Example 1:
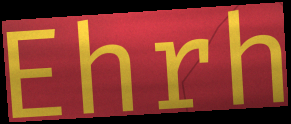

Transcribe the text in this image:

Ehrh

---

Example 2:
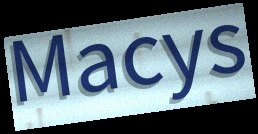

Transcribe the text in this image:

Macys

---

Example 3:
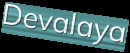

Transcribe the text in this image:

Devalaya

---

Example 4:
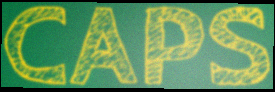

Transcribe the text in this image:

CAPS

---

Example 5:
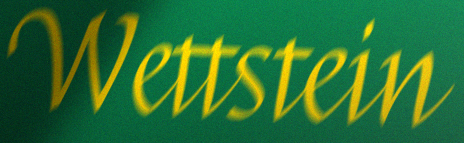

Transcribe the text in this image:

Wettstein